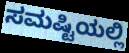
ಸಮಷ್ಟಿಯಲ್ಲಿ